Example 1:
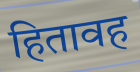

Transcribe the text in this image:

हितावह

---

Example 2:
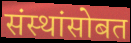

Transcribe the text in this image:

संस्थांसोबत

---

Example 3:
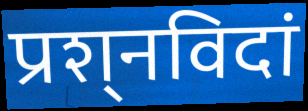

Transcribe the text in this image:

प्रश्नविदां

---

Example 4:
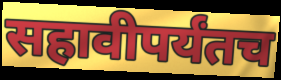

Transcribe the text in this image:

सहावीपर्यंतच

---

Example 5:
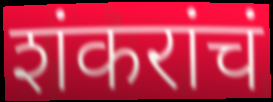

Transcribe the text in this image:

शंकरांचं